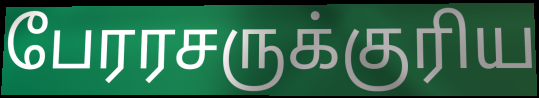
பேரரசருக்குரிய